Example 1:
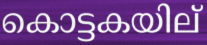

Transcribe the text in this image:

കൊട്ടകയില്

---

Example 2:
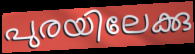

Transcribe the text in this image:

പുരയിലേക്കു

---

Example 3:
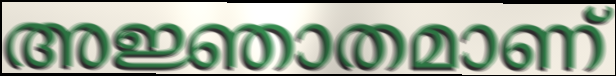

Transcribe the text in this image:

അജ്ഞാതമാണ്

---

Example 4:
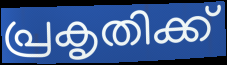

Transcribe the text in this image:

പ്രകൃതിക്ക്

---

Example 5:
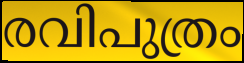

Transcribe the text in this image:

രവിപുത്രം